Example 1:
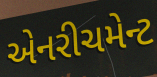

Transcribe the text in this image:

એનરીચમેન્ટ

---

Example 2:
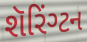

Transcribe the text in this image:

શૅરિંગ્ટન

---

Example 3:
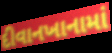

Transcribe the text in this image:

દીવાનખાનામાં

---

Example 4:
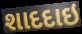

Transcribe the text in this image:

શાદદાઇ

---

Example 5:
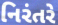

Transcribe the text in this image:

નિરંતરે